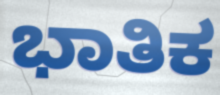
ಭಾತಿಕ